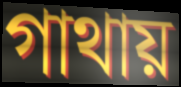
গাথায়